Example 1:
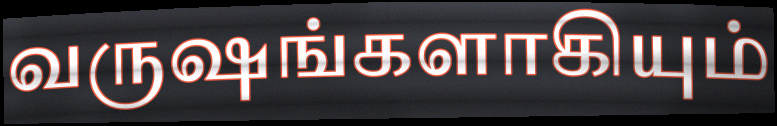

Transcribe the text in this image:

வருஷங்களாகியும்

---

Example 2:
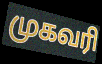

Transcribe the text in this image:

முகவரி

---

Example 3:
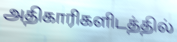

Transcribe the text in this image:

அதிகாரிகளிடத்தில்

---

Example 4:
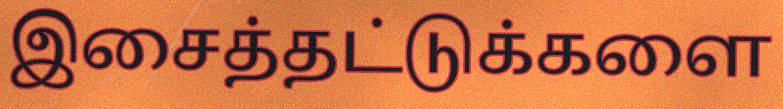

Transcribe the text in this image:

இசைத்தட்டுக்களை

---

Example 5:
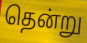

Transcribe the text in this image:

தென்று